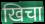
खिचा